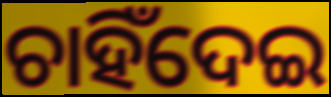
ଚାହିଁଦେଇ